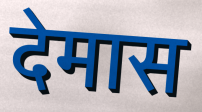
देमास